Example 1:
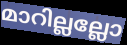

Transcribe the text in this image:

മാറില്ലല്ലോ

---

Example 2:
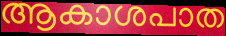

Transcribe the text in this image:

ആകാശപാത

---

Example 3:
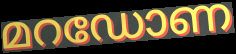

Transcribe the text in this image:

മറഡോണ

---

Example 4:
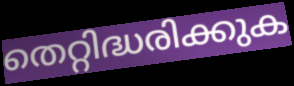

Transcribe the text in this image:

തെറ്റിദ്ധരിക്കുക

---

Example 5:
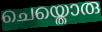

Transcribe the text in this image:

ചെയ്തൊരു